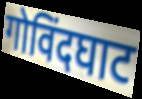
गोविंदघाट